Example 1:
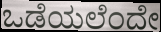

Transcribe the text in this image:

ಒಡೆಯಲೆಂದೇ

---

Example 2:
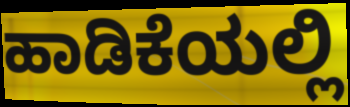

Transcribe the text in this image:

ಹಾಡಿಕೆಯಲ್ಲಿ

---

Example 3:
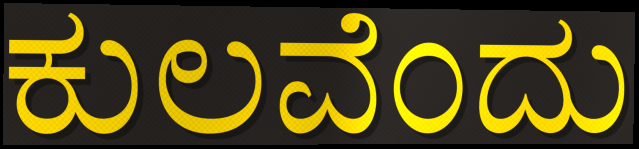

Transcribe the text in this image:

ಕುಲವೆಂದು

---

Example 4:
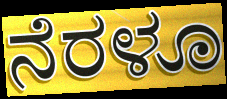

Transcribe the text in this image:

ನೆರಳೂ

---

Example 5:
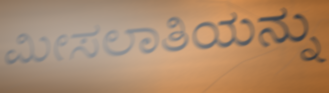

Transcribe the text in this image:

ಮೀಸಲಾತಿಯನ್ನು